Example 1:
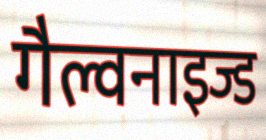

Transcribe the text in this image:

गैल्वनाइज्ड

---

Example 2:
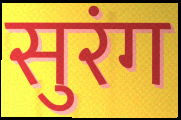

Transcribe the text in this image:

सुरंग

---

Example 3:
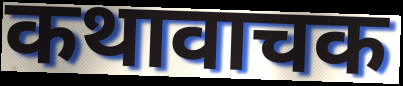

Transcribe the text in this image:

कथावाचक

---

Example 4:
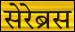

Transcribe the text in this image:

सेरेब्रस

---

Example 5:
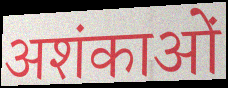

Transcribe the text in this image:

अशंकाओं